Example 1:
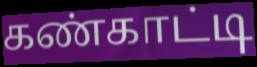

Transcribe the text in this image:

கண்காட்டி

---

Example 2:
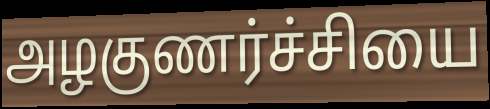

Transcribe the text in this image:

அழகுணர்ச்சியை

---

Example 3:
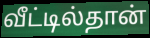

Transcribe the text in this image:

வீட்டில்தான்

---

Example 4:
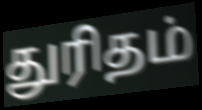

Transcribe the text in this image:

துரிதம்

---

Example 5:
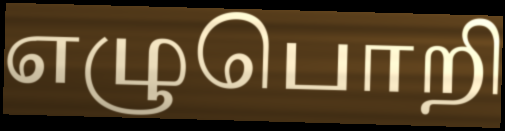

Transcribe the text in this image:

எழுபொறி